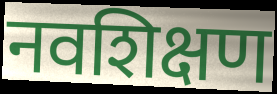
नवशिक्षण